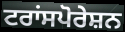
ਟਰਾਂਸਪੋਰੇਸ਼ਨ